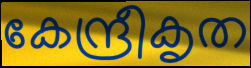
കേന്ദ്രീകൃത